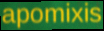
apomixis